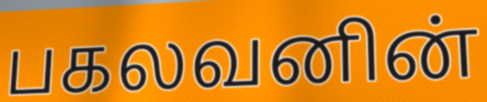
பகலவனின்